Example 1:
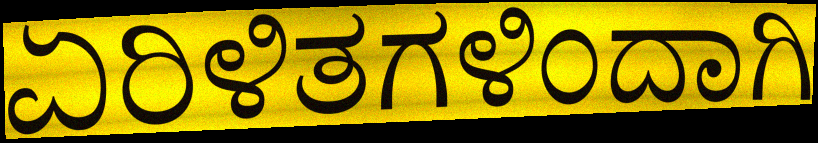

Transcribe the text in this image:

ಏರಿಳಿತಗಳಿಂದಾಗಿ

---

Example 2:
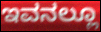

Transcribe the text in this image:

ಇವನಲ್ಲೂ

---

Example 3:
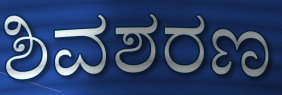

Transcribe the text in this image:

ಶಿವಶರಣ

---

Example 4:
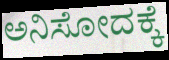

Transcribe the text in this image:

ಅನಿಸೋದಕ್ಕೆ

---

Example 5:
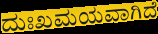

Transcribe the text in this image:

ದುಃಖಮಯವಾಗಿದೆ